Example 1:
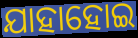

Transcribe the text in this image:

ଯାହାହୋଇ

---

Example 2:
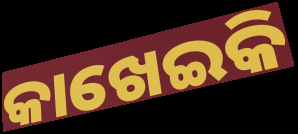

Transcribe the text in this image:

କାଖେଇକି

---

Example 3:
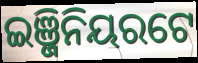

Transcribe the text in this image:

ଇଞ୍ଜିନିୟରଟେ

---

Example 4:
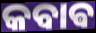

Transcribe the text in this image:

କବାଵ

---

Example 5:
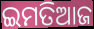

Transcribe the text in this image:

ଇମତିଆଜ